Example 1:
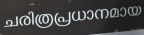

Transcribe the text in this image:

ചരിത്രപ്രധാനമായ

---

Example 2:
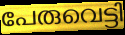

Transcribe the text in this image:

പേരുവെട്ടി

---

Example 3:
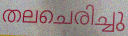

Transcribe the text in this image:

തലചെരിച്ചു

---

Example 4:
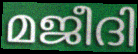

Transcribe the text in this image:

മജീദി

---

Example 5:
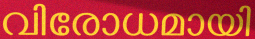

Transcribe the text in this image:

വിരോധമായി